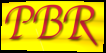
PBR